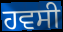
ਹਵਸੀ